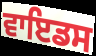
ਵਾਇਡਸ